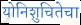
योनिशुचितेचा